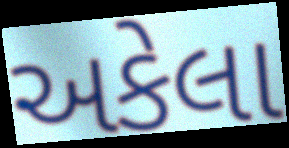
અકેલા